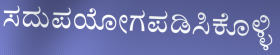
ಸದುಪಯೋಗಪಡಿಸಿಕೊಳ್ಳಿ